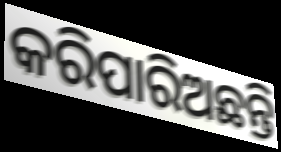
କରିପାରିଅଛନ୍ତି